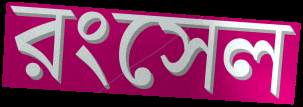
রংসেল